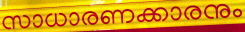
സാധാരണക്കാരനും